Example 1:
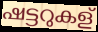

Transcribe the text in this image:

ഷട്ടറുകള്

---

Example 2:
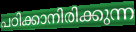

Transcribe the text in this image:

പഠിക്കാനിരിക്കുന്ന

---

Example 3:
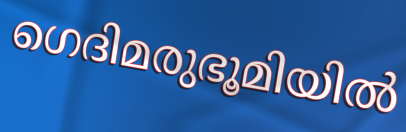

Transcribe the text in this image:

ഗെദിമരുഭൂമിയിൽ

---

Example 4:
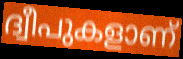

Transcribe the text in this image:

ദ്വീപുകളാണ്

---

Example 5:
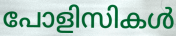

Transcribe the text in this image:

പോളിസികൾ